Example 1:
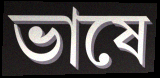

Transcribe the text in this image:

ভাষে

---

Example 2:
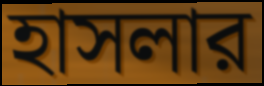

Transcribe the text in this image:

হাসলার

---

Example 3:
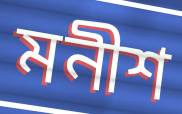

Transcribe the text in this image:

মনীশ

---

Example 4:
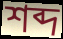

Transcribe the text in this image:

শব্দ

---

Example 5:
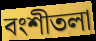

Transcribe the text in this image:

বংশীতলা